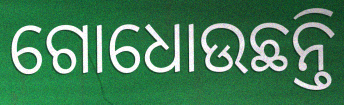
ଗୋଧୋଉଛନ୍ତି